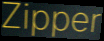
Zipper